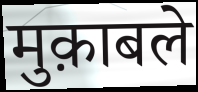
मुक़ाबले